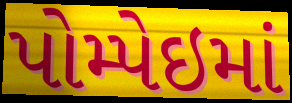
પોમ્પેઇમાં